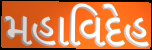
મહાવિદેહ